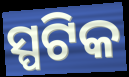
ସ୍ପଟିକ